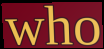
who